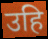
उहि